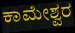
ಕಾಮೇಶ್ವರ